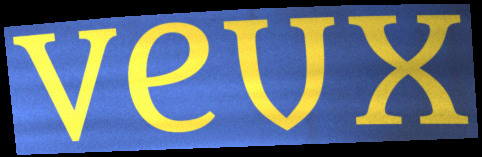
veux